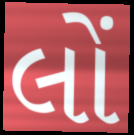
લોં